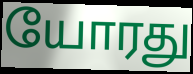
யோரது